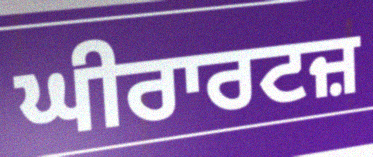
ਘੀਰਾਰਟਜ਼